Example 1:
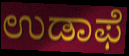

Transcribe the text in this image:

ಉಡಾಫೆ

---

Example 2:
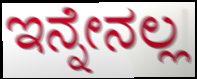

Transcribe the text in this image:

ಇನ್ನೇನಲ್ಲ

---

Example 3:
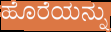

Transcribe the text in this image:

ಹೊರೆಯನ್ನು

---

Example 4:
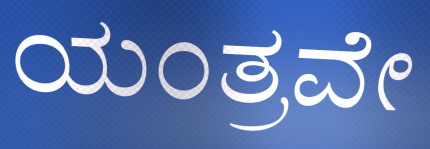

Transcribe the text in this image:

ಯಂತ್ರವೇ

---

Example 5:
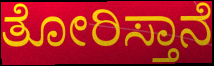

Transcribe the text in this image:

ತೋರಿಸ್ತಾನೆ